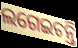
ଲଗେଇଚନ୍ତି